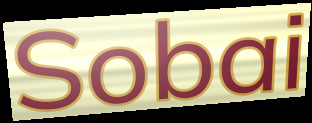
Sobai